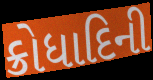
ક્રોધાદિની